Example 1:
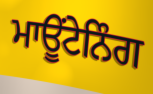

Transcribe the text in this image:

ਮਾਊਂਟੇਨਿੰਗ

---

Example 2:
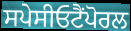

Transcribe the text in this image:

ਸਪੇਸੀਓਟੈਂਪੋਰਲ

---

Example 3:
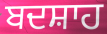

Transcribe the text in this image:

ਬਦਸ਼ਾਹ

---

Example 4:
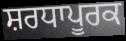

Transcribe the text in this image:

ਸ਼ਰਧਾਪੂਰਕ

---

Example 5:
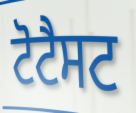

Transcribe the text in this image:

ਟੋਟੈਸਟ